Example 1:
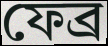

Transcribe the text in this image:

ফেব্র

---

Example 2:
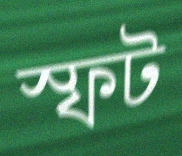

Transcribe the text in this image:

স্ফট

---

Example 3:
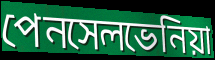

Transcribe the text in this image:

পেনসেলভেনিয়া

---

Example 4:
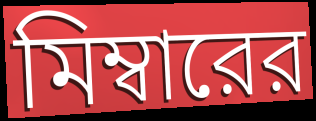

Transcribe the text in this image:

মিম্বারের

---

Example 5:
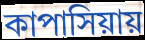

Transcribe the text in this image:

কাপাসিয়ায়